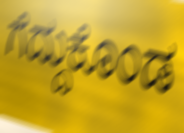
ಗೆದ್ದುಕೊಂಡ